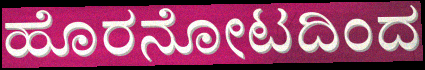
ಹೊರನೋಟದಿಂದ